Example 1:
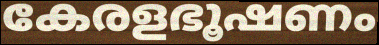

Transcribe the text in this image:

കേരളഭൂഷണം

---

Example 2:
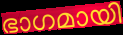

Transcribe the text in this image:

ഭാഗമായി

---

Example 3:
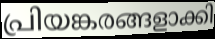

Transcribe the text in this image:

പ്രിയങ്കരങ്ങളാക്കി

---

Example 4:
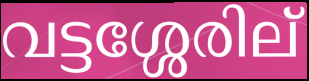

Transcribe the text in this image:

വട്ടശ്ശേരില്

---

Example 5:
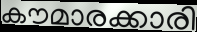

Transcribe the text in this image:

കൗമാരക്കാരി